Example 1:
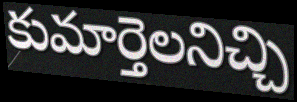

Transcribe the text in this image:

కుమార్తెలనిచ్చి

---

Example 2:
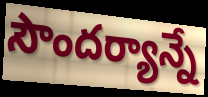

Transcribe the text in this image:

సౌందర్యాన్నే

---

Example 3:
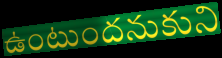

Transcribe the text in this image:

ఉంటుందనుకుని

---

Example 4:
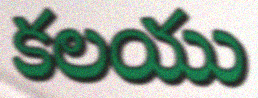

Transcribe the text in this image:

కలయు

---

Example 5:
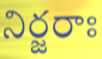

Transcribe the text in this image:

నిర్జరాః